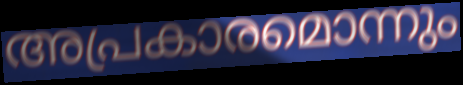
അപ്രകാരമൊന്നും